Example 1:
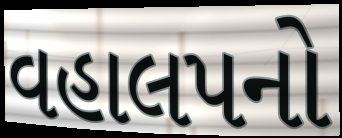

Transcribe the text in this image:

વહાલપનો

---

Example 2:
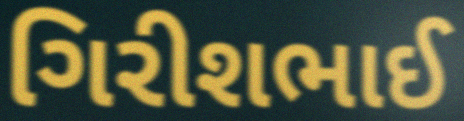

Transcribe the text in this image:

ગિરીશભાઈ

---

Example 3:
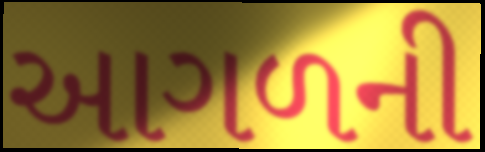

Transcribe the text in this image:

આગળની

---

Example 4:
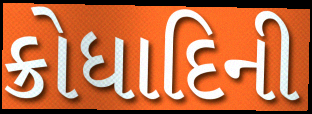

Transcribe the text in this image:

ક્રોધાદિની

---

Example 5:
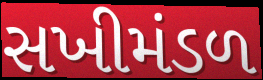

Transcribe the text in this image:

સખીમંડળ